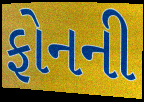
ફોનની